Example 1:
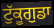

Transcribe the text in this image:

ਟੁੱਕੂਗੁਡਾ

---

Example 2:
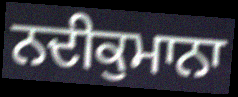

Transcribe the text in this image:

ਨਦੀਕੁਮਾਨਾ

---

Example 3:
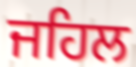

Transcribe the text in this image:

ਜਹਿਲ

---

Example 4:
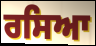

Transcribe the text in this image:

ਰਸਿਆ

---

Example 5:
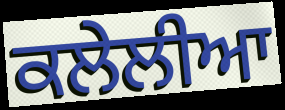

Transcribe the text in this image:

ਕਲੇਲੀਆ